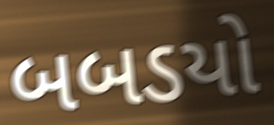
બબડયો